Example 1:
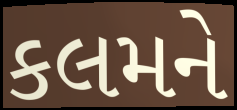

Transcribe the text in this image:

કલમને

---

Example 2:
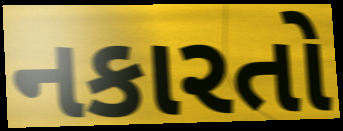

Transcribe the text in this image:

નકારતો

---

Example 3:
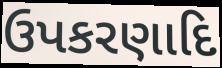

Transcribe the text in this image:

ઉપકરણાદિ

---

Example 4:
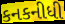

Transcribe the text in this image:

કનકનીધી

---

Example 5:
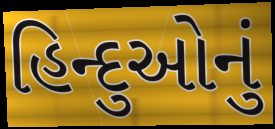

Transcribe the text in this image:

હિન્દુઓનું